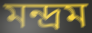
মন্দ্রম